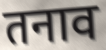
तनाव